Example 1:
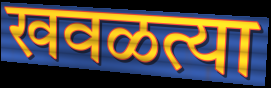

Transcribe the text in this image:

खवळत्या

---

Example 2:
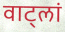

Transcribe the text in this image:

वाट्लां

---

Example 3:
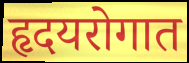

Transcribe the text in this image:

हृदयरोगात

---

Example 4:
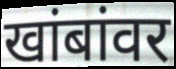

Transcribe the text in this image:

खांबांवर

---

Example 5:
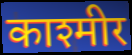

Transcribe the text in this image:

काश्मीर